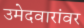
उमेदवारांवर